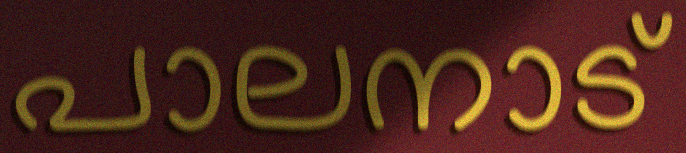
പാലനാട്